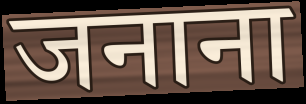
जनाना